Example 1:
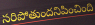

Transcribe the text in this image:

సరిపోతుందనిపించింది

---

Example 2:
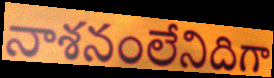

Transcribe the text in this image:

నాశనంలేనిదిగా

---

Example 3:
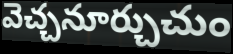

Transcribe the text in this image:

వెచ్చనూర్చుచుం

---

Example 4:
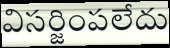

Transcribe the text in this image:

విసర్జింపలేదు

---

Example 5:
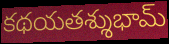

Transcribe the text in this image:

కథయతశ్శుభామ్